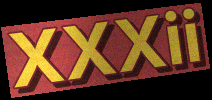
XXXii